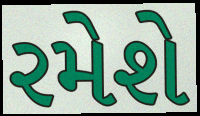
રમેશે